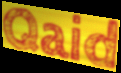
Qaid